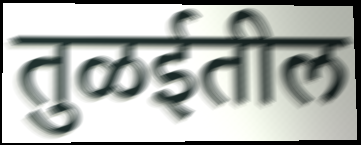
तुळईतील